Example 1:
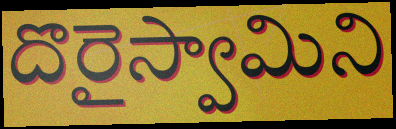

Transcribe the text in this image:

దొరైస్వామిని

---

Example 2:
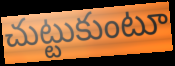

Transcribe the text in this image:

చుట్టుకుంటూ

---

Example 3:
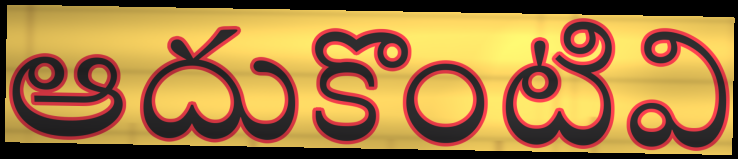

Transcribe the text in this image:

ఆదుకొంటివి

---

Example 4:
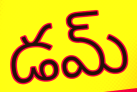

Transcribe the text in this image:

డమ్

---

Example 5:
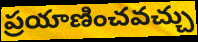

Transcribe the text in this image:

ప్రయాణించవచ్చు